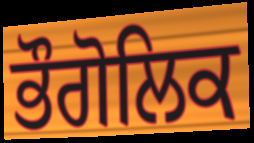
ਭੌਗੋਲਿਕ